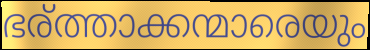
ഭര്ത്താക്കന്മാരെയും